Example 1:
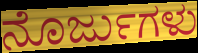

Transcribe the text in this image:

ನೊರ್ಜುಗಳು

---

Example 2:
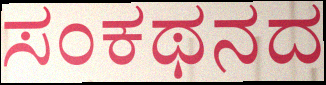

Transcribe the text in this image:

ಸಂಕಥನದ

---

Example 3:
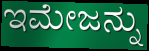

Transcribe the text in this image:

ಇಮೇಜನ್ನು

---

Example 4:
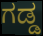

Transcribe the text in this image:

ಗಡ್ಡ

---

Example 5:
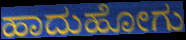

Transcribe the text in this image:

ಹಾದುಹೋಗು